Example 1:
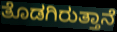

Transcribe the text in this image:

ತೊಡಗಿರುತ್ತಾನೆ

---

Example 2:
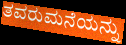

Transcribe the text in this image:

ತವರುಮನೆಯನ್ನು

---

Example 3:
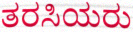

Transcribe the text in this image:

ತರಸಿಯರು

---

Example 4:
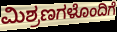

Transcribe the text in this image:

ಮಿಶ್ರಣಗಳೊಂದಿಗೆ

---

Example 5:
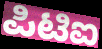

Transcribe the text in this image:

ಪಿಟಿಐ